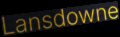
Lansdowne